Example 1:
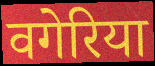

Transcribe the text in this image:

वगेरिया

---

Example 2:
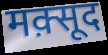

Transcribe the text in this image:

मक़्सूद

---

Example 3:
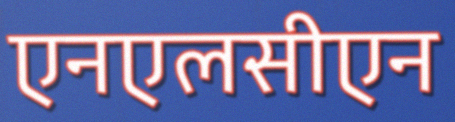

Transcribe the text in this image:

एनएलसीएन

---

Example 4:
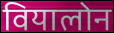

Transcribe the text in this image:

वियालोन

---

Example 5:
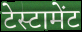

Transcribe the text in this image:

टेस्टामेंट